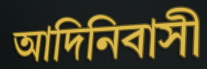
আদিনিবাসী